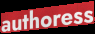
authoress